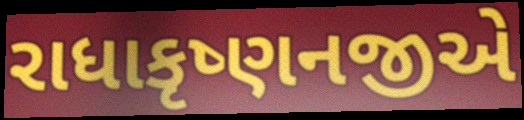
રાધાકૃષ્ણનજીએ